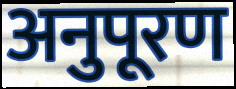
अनुपूरण